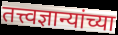
तत्त्वज्ञान्यांच्या